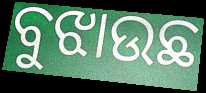
ବୁଝାଉଛ